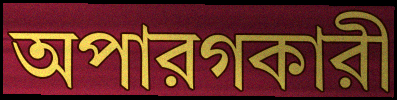
অপারগকারী